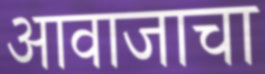
आवाजाचा